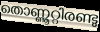
തൊണ്ണൂറ്റിരണ്ടു